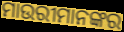
ମାଉରୀମାନଙ୍କର